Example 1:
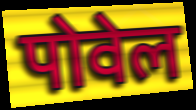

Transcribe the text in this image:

पोवेल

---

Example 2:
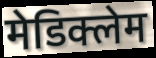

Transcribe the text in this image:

मेडिक्लेम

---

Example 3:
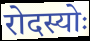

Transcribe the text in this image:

रोदस्योः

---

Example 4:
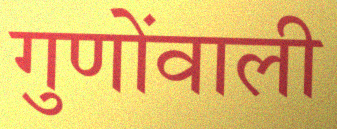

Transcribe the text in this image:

गुणोंवाली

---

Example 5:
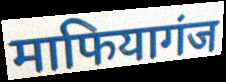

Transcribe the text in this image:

माफियागंज